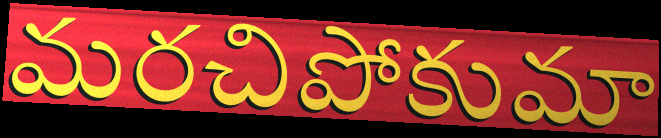
మరచిపోకుమా